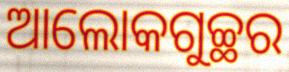
ଆଲୋକଗୁଚ୍ଛର